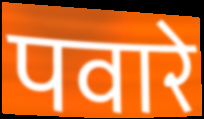
पवारे